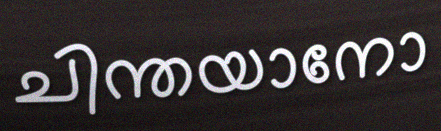
ചിന്തയാനോ